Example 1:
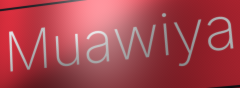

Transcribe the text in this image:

Muawiya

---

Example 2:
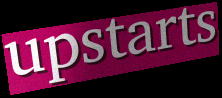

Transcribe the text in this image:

upstarts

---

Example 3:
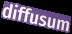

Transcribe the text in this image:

diffusum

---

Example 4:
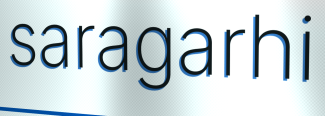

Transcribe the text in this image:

saragarhi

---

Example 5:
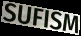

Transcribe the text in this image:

SUFISM